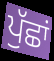
ਪੁੱਛਾਂ